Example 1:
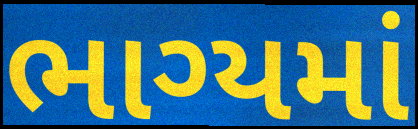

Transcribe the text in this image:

ભાગ્યમાં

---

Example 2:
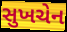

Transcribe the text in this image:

સુખચેન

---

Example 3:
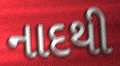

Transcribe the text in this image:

નાદથી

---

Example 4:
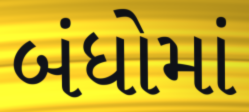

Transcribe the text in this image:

બંધોમાં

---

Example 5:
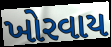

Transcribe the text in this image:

ખોરવાય